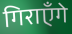
गिराएँगे